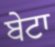
ਬੇਟਾ